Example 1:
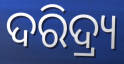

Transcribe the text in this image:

ଦରିଦ୍ର୍ୟ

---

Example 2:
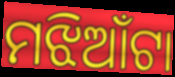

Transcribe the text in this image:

ମଝିଆଁଟା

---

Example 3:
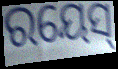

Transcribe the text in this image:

ରୟେସ୍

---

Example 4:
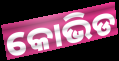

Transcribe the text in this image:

କୋଭିଡ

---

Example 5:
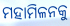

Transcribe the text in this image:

ମହାମିଳନକୁ